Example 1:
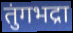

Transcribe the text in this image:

तुंगभद्रा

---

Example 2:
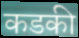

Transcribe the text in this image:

कडकी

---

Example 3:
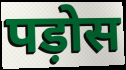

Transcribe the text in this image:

पड़ोस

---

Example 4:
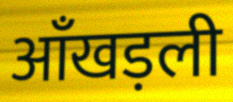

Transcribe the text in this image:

आँखड़ली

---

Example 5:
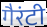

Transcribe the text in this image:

गैरंटी